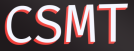
CSMT